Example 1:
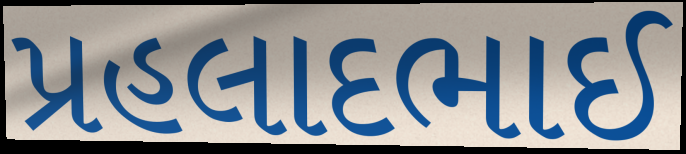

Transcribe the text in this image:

પ્રહલાદભાઈ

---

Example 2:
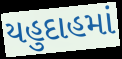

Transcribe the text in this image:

યહુદાહમાં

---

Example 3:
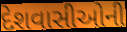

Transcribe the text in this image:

દેશવાસીઓની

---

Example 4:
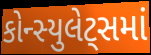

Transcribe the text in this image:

કોન્સ્યુલેટ્સમાં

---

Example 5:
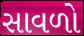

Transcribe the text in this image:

સાવળો